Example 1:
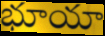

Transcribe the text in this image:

భూయా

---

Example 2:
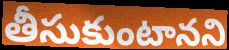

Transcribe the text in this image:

తీసుకుంటానని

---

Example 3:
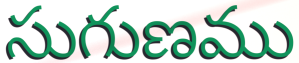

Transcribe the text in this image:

సుగుణము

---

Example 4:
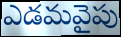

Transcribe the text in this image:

ఎడమవైపు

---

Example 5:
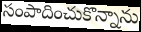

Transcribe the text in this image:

సంపాదించుకొన్నాను